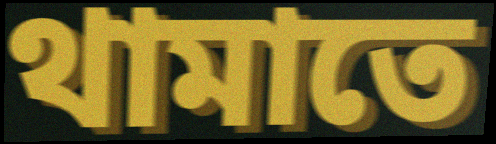
থামাতে